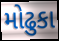
મોઢુકા